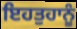
ਇਹਤੁਹਾਨੂੰ